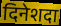
दिनेशदा